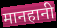
मानहानी